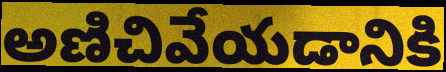
అణిచివేయడానికి